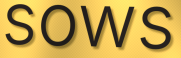
sows